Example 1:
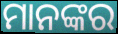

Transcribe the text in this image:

ମାନଙ୍କର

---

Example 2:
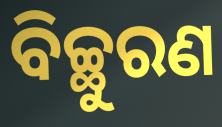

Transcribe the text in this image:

ବିଚ୍ଛୁରଣ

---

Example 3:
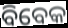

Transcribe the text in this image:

ବିବେକ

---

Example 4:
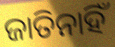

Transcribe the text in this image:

ଜାତିନାହିଁ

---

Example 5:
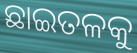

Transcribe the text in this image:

ଛାଇତଳକୁ